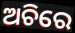
ଅଚିରେ